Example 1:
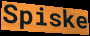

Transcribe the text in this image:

Spiske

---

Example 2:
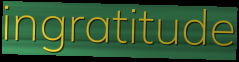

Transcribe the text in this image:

ingratitude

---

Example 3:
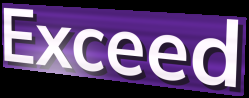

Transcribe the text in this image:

Exceed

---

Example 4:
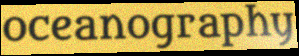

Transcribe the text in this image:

oceanography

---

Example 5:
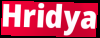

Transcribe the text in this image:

Hridya